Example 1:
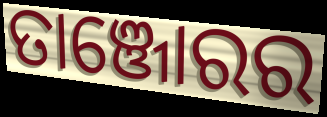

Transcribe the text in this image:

ତାଞ୍ଜୋରର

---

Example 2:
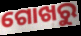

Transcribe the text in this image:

ଗୋଖରୁ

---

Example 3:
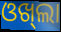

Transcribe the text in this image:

ଓଖ୍‌ଲା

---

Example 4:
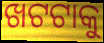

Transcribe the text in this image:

ଖଟଟାକୁ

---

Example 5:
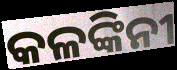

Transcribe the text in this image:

କଳଙ୍କିନୀ